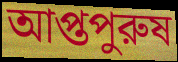
আপ্তপুরুষ